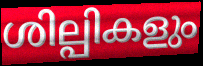
ശില്പികളും